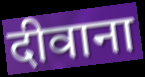
दीवाना